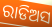
ରାଡିଅସ